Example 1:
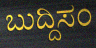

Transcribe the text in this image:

ಬುದ್ದಿಸಂ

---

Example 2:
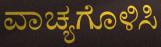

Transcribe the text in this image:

ವಾಚ್ಯಗೊಳಿಸಿ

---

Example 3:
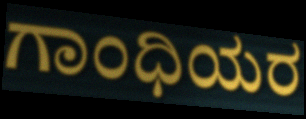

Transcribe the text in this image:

ಗಾಂಧಿಯರ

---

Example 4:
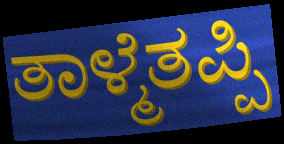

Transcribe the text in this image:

ತಾಳ್ಮೆತಪ್ಪಿ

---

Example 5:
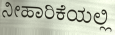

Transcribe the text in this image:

ನೀಹಾರಿಕೆಯಲ್ಲಿ